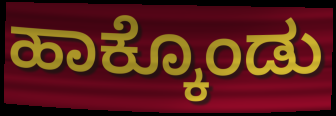
ಹಾಕ್ಕೊಂಡು